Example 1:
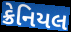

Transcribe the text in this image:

ક્રેનિયલ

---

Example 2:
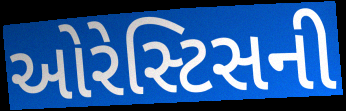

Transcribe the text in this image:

ઓરેસ્ટિસની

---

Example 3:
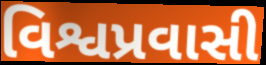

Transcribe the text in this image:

વિશ્વપ્રવાસી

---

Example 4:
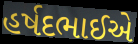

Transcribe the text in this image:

હર્ષદભાઈએ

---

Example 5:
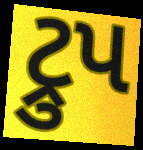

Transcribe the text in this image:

ટ્રુપ